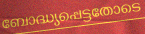
ബോദ്ധ്യപ്പെട്ടതോടെ